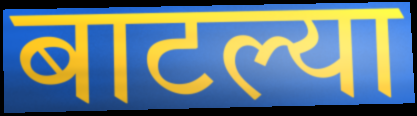
बाटल्या